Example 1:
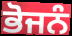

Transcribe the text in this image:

ਭੋਜਨੰ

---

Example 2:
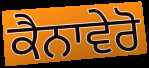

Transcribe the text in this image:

ਕੈਨਾਵੇਰੋ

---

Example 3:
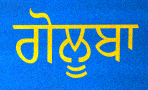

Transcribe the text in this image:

ਗੋਲੂਬਾ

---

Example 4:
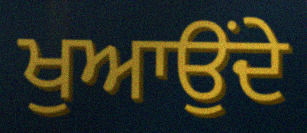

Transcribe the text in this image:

ਖੁਆਉਂਦੇ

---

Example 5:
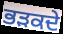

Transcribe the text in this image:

ਭੜਕਦੇ